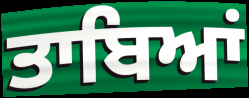
ਤਾਬਿਆਂ